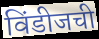
विंडीजची